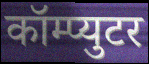
कॉम्प्युटर